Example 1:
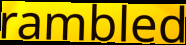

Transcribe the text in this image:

rambled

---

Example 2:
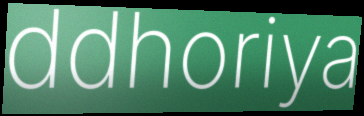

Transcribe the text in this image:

ddhoriya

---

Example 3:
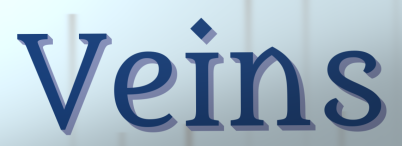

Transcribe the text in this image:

Veins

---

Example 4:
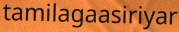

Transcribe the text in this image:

tamilagaasiriyar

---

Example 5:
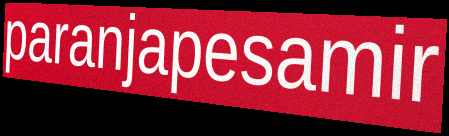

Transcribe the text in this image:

paranjapesamir